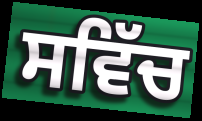
ਸਵਿੱਚ